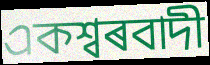
একশ্বৰবাদী